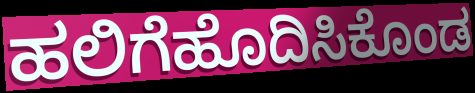
ಹಲಿಗೆಹೊದಿಸಿಕೊಂಡ